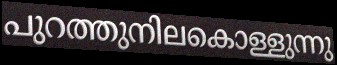
പുറത്തുനിലകൊള്ളുന്നു